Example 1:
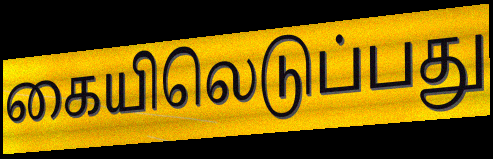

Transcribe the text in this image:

கையிலெடுப்பது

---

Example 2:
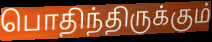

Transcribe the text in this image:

பொதிந்திருக்கும்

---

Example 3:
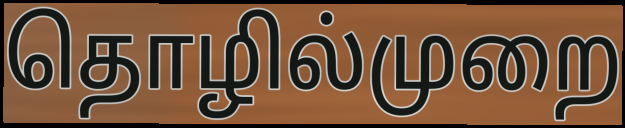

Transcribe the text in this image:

தொழில்முறை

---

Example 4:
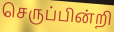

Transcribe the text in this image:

செருப்பின்றி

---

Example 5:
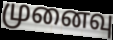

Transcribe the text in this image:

முனைவு